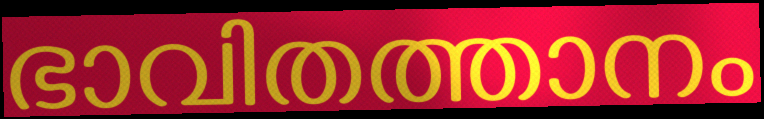
ഭാവിതത്താനം